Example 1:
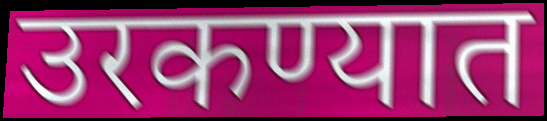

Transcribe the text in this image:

उरकण्यात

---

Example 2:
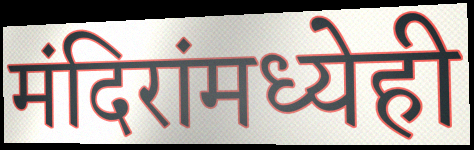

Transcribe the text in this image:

मंदिरांमध्येही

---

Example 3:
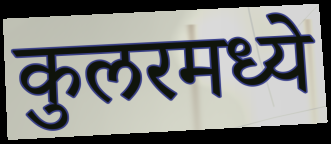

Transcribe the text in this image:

कुलरमध्ये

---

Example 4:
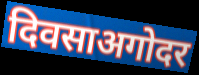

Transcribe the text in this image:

दिवसाअगोदर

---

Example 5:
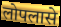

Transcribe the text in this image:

लोपलासे